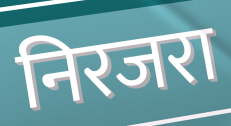
निरजरा